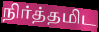
நிர்த்தமிட